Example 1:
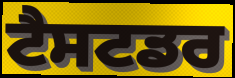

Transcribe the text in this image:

ਟੈਸਟਡਰ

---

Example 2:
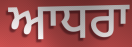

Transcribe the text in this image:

ਆਧਰਾ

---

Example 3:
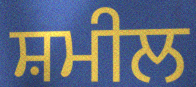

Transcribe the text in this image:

ਸ਼ਮੀਲ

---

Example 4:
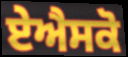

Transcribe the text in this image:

ਏਐਸਕੋ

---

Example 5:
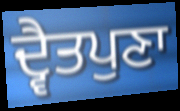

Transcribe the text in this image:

ਦ੍ਵੈਤਪੁਣਾ